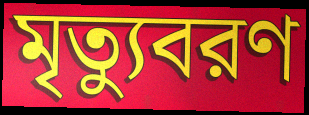
মৃত্যুবরণ